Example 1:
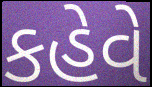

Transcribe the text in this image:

કહેવે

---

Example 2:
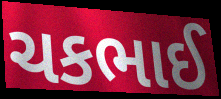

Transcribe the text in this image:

ચકભાઈ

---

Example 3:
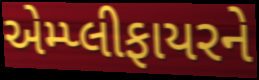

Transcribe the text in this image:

એમ્પ્લીફાયરને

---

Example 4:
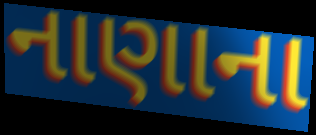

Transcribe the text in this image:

નાણાના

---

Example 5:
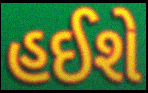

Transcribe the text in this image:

હઈશે